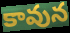
కావున